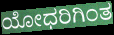
ಯೋಧರಿಗಿಂತ